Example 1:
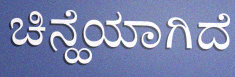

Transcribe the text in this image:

ಚಿನ್ಹೆಯಾಗಿದೆ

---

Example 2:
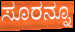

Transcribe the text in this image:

ಸೂರನ್ನೂ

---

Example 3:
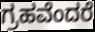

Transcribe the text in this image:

ಗ್ರಹವೆಂದರೆ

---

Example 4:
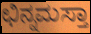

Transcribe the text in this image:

ಛಿನ್ನಮಸ್ತಾ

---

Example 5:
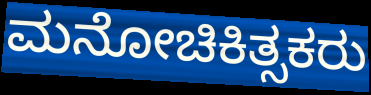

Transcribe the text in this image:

ಮನೋಚಿಕಿತ್ಸಕರು